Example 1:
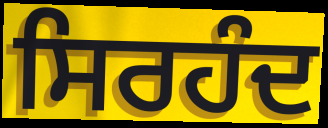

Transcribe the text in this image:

ਸਿਰਹੰਦ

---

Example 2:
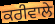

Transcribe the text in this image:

ਕਰੀਵਾਲੇ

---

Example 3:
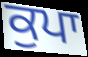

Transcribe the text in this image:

ਕੁਪਾ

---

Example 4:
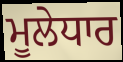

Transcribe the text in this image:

ਮੂਲੇਧਾਰ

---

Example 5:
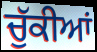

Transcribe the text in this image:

ਚੁੱਕੀਆਂ